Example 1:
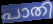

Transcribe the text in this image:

പാതി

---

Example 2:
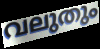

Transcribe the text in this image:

വലുതും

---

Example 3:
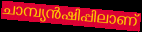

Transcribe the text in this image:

ചാമ്പ്യൻഷിപ്പിലാണ്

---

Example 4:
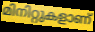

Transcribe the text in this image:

മിനിറ്റുകളാണ്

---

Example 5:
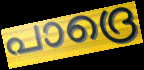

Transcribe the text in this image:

പാദ്രെ